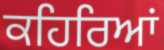
ਕਹਿਰਿਆਂ